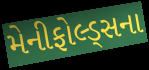
મેનીફોલ્ડ્સના